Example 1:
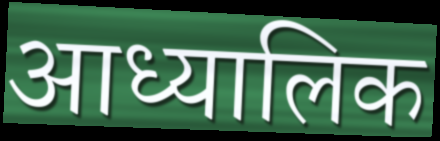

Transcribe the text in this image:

आध्यालिक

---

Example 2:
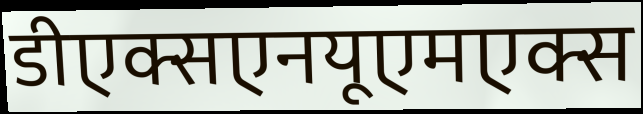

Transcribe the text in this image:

डीएक्सएनयूएमएक्स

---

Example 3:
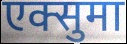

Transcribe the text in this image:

एक्सुमा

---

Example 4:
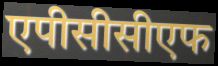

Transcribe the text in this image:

एपीसीसीएफ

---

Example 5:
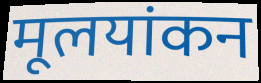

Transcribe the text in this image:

मूलयांकन